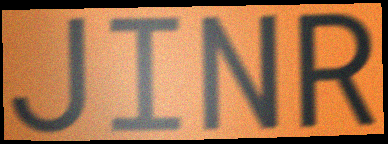
JINR